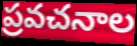
ప్రవచనాల